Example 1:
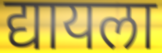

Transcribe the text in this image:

द्यायला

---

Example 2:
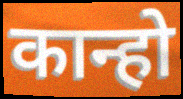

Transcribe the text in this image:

कान्हो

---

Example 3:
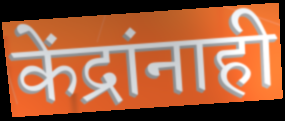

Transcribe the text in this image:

केंद्रांनाही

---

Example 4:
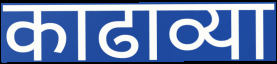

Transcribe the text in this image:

काढाव्या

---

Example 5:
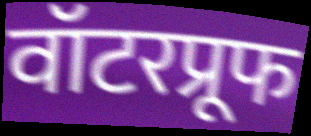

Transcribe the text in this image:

वॉटरप्रूफ